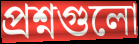
প্রশ্নগুলো